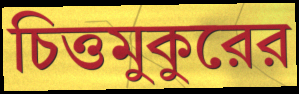
চিত্তমুকুরের